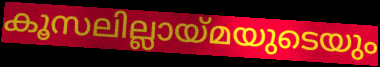
കൂസലില്ലായ്മയുടെയും